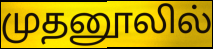
முதனூலில்